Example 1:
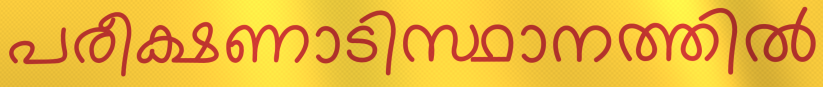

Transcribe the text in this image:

പരീക്ഷണാടിസ്ഥാനത്തിൽ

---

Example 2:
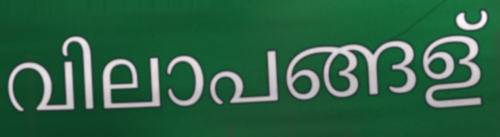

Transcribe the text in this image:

വിലാപങ്ങള്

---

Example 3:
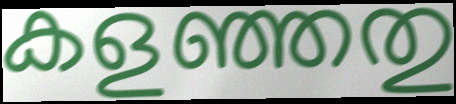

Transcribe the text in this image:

കളഞ്ഞതു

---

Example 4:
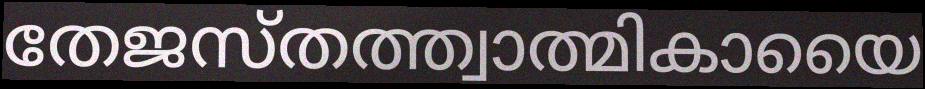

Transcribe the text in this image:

തേജസ്തത്ത്വാത്മികായൈ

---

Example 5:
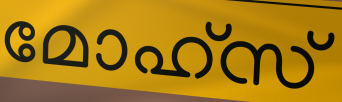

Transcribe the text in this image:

മോഹ്സ്